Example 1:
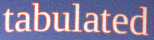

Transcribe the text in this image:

tabulated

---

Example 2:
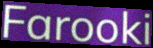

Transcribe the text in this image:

Farooki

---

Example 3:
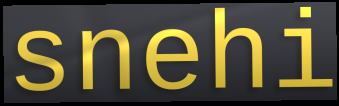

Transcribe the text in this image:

snehi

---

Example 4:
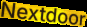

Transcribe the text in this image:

Nextdoor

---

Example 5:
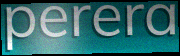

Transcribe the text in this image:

perera